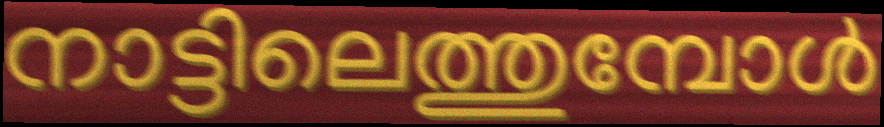
നാട്ടിലെത്തുമ്പോൾ